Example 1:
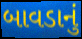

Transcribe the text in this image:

બાવડાનું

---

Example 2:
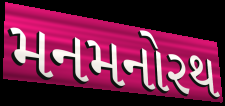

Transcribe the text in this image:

મનમનોરથ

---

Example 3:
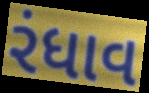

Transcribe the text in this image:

રંધાવ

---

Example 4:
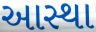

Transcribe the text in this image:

આસ્થા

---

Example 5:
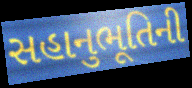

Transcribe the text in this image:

સહાનુભૂતિની